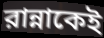
রান্নাকেই